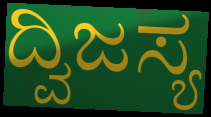
ದ್ವಿಜಸ್ಯ